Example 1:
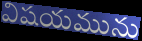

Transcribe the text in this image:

విషయమును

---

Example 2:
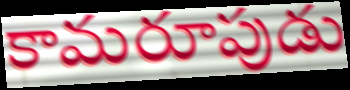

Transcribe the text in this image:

కామరూపుడు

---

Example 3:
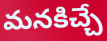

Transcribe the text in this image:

మనకిచ్చే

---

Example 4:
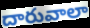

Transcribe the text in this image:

దారువాలా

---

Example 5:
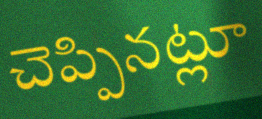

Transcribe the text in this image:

చెప్పినట్లూ